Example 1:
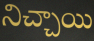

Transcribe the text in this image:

నిచ్చాయి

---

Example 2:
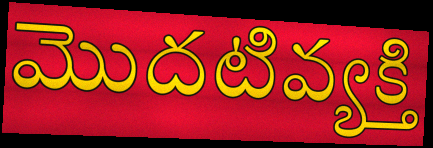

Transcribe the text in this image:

మొదటివ్యక్తి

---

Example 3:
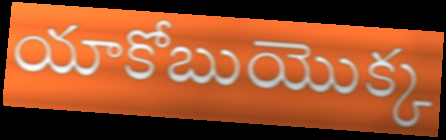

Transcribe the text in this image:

యాకోబుయొక్క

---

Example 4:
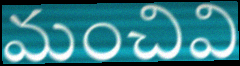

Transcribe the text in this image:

మంచివి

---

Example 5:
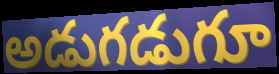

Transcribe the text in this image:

అడుగడుగూ